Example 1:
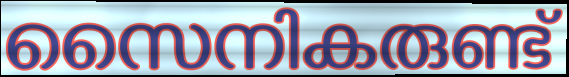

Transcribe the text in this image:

സൈനികരുണ്ട്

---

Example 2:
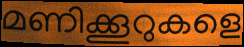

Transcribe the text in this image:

മണിക്കൂറുകളെ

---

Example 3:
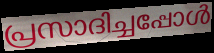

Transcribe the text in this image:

പ്രസാദിച്ചപ്പോൾ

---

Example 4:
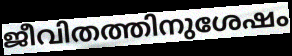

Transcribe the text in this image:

ജീവിതത്തിനുശേഷം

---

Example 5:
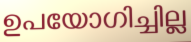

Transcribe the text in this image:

ഉപയോഗിച്ചില്ല